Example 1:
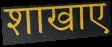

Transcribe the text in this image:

शाखाए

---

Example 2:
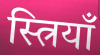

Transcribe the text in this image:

स्‍त्रियाँ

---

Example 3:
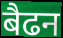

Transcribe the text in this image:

बैढन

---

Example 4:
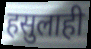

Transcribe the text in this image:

हसुलाही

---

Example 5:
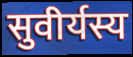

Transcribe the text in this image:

सुवीर्यस्य